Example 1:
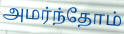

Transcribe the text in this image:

அமர்ந்தோம்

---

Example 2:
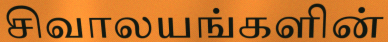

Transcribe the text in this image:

சிவாலயங்களின்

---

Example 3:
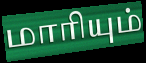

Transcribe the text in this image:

மாரியும்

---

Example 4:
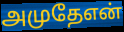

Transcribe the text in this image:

அமுதேஎன்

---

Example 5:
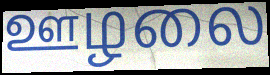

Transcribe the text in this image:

ஊழலை